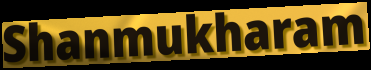
Shanmukharam